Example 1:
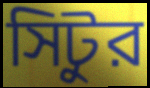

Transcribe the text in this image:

সিটুর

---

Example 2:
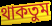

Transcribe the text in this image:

থাকতুম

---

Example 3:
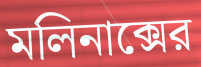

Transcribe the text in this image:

মলিনাক্সের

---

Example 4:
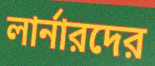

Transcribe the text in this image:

লার্নারদের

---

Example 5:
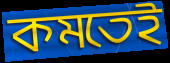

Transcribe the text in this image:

কমতেই